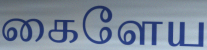
கைளேய